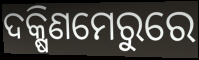
ଦକ୍ଷିଣମେରୁରେ